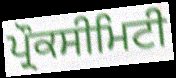
ਪ੍ਰੌਕਸੀਮਿਟੀ